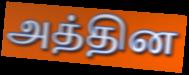
அத்தின